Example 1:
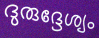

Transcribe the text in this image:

ദുരുദ്ദേശ്യം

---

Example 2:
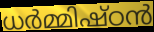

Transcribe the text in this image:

ധർമ്മിഷ്ഠൻ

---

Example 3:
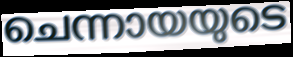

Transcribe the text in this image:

ചെന്നായയുടെ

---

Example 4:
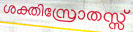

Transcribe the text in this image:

ശക്തിസ്രോതസ്സ്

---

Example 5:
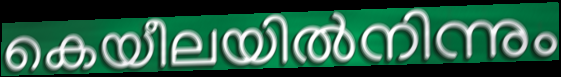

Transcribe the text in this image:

കെയീലയിൽനിന്നും